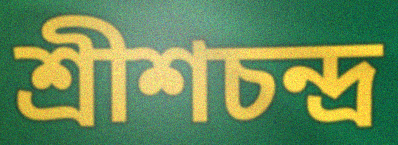
শ্রীশচন্দ্র